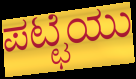
ಪಟ್ಟೆಯು